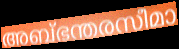
അബ്ഭന്തരസീമാ